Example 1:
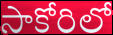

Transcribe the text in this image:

సాకోరిలో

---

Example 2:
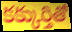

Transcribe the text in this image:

కక్కుర్తితో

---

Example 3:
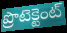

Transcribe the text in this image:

ప్రొటెక్టెంట్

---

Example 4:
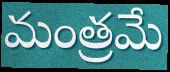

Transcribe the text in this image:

మంత్రమే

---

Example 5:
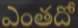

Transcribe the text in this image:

ఎంతదో